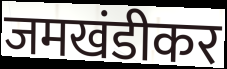
जमखंडीकर